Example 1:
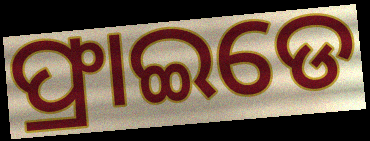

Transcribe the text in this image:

ଫ୍ରାଇଡେ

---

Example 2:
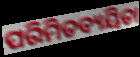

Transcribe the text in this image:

ପରିମିତବ୍ୟୟିତା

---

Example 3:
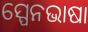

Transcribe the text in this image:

ସ୍ପେନଭାଷା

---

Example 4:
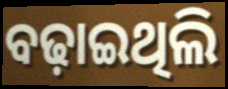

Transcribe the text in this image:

ବଢ଼ାଇଥିଲି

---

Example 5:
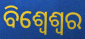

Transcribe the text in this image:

ବିଶ୍ୱେଶ୍ୱର